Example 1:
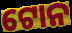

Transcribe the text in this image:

ଟୋନ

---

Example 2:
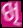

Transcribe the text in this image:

ଖି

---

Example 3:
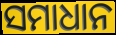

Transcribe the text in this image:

ସମାଧାନ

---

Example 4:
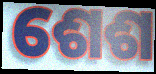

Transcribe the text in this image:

ଶେଶ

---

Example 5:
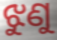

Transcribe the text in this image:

ଝୁଣୁ